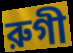
রুগী